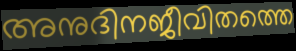
അനുദിനജീവിതത്തെ